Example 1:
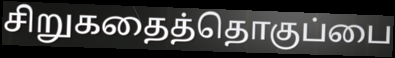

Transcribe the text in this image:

சிறுகதைத்தொகுப்பை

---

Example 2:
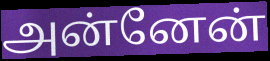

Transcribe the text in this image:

அன்னேன்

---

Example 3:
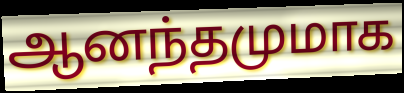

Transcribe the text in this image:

ஆனந்தமுமாக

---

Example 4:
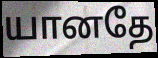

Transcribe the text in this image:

யானதே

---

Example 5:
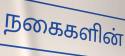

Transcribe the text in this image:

நகைகளின்